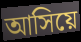
আসিয়ে